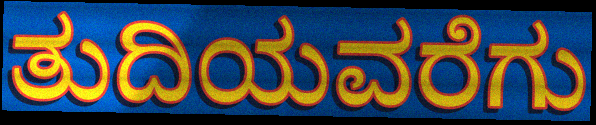
ತುದಿಯವರೆಗು